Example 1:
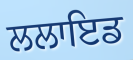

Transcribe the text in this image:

ਲਲਾਇਡ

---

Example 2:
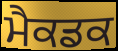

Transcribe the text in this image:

ਮੈਕਡਕ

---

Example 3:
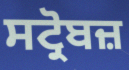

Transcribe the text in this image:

ਸਟ੍ਰੋਬਜ਼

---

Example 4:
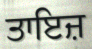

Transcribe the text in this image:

ਤਾਇਜ਼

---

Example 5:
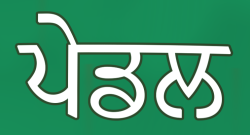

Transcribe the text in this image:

ਪੇਡਲ